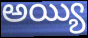
అయ్యి